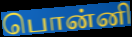
பொன்னி